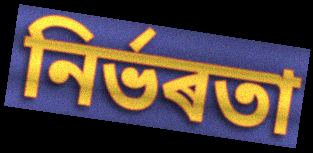
নিৰ্ভৰতা